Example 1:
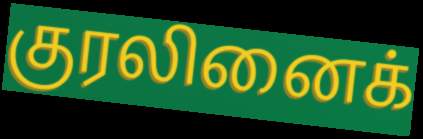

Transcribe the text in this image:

குரலினைக்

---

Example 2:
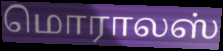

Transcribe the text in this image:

மொராலஸ்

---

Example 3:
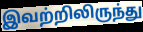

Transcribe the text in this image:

இவற்றிலிருந்து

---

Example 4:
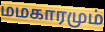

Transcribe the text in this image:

மமகாரமும்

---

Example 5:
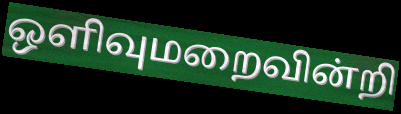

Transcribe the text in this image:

ஒளிவுமறைவின்றி